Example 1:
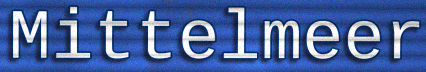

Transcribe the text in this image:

Mittelmeer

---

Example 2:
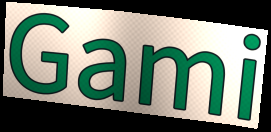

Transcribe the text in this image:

Gami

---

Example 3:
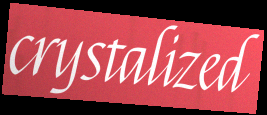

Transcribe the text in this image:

crystalized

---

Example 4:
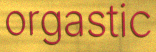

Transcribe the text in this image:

orgastic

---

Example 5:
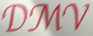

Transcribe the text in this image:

DMV